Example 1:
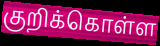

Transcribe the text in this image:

குறிக்கொள்ள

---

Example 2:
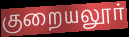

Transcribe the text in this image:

குறையலூர்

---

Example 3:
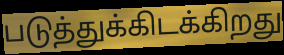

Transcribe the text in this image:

படுத்துக்கிடக்கிறது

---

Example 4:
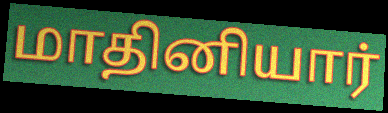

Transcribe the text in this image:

மாதினியார்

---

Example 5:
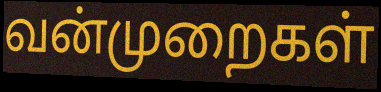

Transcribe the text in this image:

வன்முறைகள்